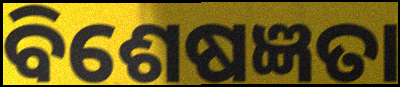
ବିଶେଷଜ୍ଞତା